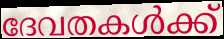
ദേവതകൾക്ക്